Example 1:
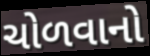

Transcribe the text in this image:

ચોળવાનો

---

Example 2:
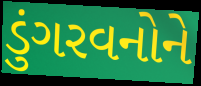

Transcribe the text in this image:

ડુંગરવનોને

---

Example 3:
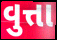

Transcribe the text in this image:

વુત્તા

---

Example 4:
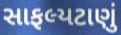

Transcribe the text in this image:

સાફલ્યટાણું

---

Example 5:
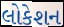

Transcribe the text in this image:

લોકેશન